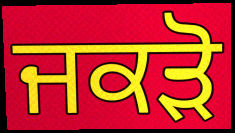
ਜਕੜੋ